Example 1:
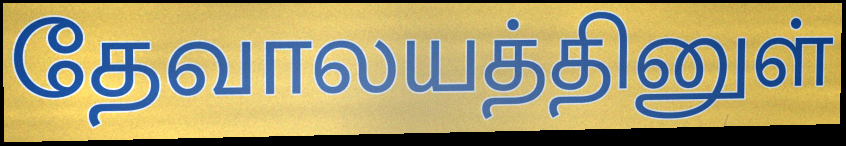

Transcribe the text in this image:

தேவாலயத்தினுள்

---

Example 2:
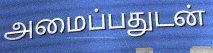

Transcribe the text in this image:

அமைப்பதுடன்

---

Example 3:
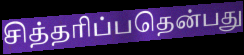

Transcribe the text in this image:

சித்தரிப்பதென்பது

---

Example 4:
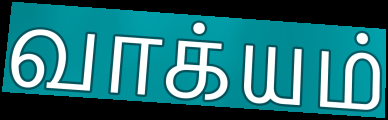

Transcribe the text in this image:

வாக்யம்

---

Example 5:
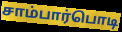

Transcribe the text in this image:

சாம்பார்பொடி